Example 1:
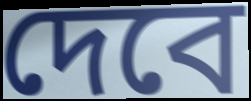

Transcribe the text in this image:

দেবে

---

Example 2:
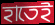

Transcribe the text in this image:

হাতেই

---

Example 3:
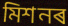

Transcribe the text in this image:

মিশনৰ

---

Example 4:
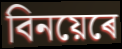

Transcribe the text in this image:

বিনয়েৰে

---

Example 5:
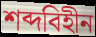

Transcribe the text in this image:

শব্দবিহীন